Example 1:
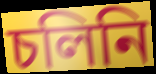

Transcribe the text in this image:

চলিনি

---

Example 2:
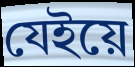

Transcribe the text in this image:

যেইয়ে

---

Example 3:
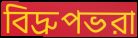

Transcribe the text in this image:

বিদ্রুপভরা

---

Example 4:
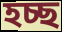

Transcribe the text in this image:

হচ্ছ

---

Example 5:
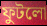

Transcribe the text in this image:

ফুটলো